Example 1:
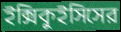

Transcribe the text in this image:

ইক্সিকুইসিসের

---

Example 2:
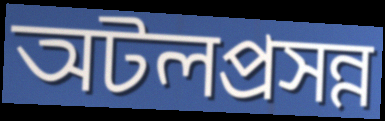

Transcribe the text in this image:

অটলপ্রসন্ন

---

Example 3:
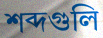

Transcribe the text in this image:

শব্দগুলি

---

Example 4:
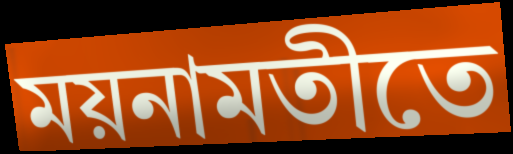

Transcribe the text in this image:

ময়নামতীতে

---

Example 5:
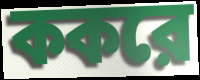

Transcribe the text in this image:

ককরে